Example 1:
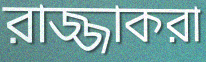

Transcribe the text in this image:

রাজ্জাকরা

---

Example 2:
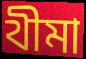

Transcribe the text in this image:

থীমা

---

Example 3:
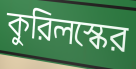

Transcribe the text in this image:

কুরিলস্কের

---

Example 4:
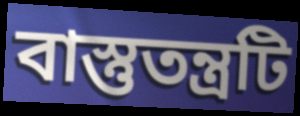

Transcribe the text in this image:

বাস্তুতন্ত্রটি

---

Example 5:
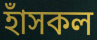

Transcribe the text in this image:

হাঁসকল